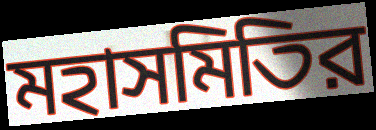
মহাসমিতির